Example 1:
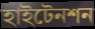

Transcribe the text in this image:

হাইটেনশন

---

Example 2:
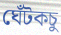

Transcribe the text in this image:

ঘেঁটকচু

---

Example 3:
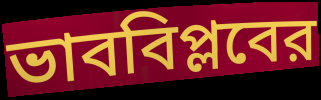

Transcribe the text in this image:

ভাববিপ্লবের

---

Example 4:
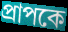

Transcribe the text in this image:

প্রাপকে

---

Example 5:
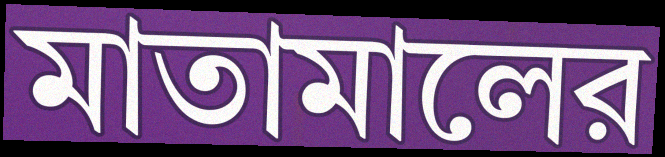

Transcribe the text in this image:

মাতামালের